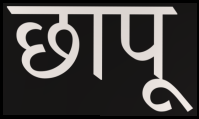
छापू